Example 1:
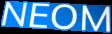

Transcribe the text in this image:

NEOM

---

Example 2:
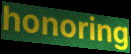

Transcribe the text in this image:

honoring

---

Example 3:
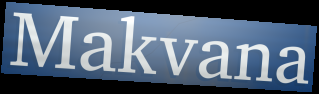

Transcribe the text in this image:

Makvana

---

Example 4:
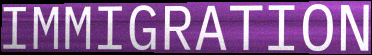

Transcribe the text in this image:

IMMIGRATION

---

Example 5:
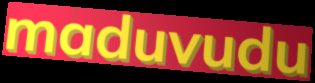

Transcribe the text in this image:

maduvudu